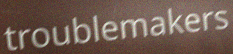
troublemakers